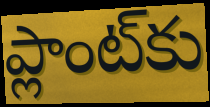
ప్లాంట్‌కు